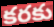
కరకు